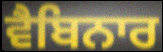
ਵੈਬਿਨਾਰ